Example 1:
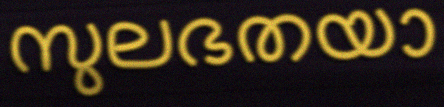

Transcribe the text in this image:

സുലഭതയാ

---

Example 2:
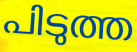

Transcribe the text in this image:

പിടുത്ത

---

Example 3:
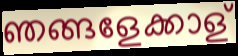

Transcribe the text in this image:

ഞങ്ങളേക്കാള്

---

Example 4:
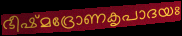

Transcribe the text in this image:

ഭീഷ്മദ്രോണകൃപാദയഃ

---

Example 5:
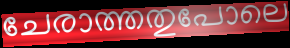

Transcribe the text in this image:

ചേരാത്തതുപോലെ